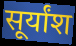
सूर्यांश